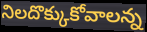
నిలదొక్కుకోవాలన్న